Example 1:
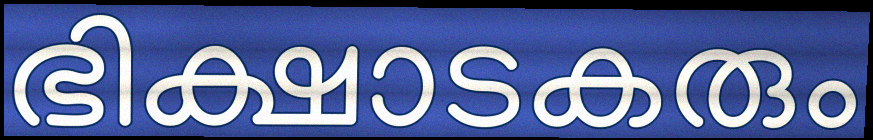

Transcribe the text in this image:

ഭിക്ഷാടകരും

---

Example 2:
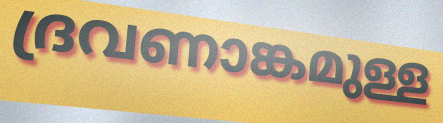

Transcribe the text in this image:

ദ്രവണാങ്കമുള്ള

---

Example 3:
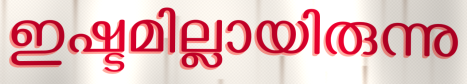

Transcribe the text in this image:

ഇഷ്ടമില്ലായിരുന്നു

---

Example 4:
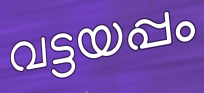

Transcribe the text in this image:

വട്ടയപ്പം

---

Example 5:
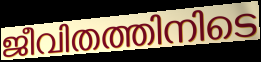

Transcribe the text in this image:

ജീവിതത്തിനിടെ